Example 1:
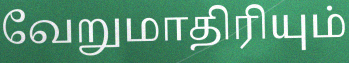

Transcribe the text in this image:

வேறுமாதிரியும்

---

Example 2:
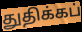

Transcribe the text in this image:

துதிக்கப்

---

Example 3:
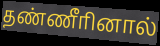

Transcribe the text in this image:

தண்ணீரினால்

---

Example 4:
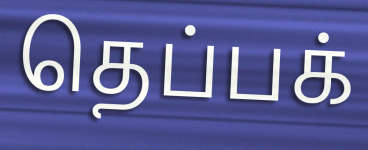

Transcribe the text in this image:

தெப்பக்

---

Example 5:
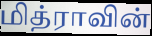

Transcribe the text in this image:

மித்ராவின்